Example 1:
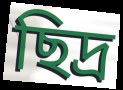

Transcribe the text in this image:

ছিদ্ৰ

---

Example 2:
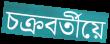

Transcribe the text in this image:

চক্ৰবৰ্তীয়ে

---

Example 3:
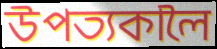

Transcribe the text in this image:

উপত্যকালৈ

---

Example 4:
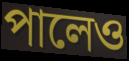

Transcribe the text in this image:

পালেও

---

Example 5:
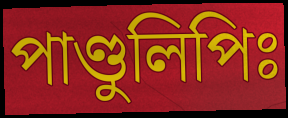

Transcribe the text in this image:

পাণ্ডুলিপিঃ